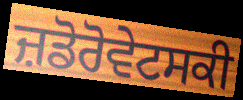
ਜ਼ਡੋਰੋਵੇਟਸਕੀ